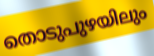
തൊടുപുഴയിലും